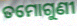
ତମୋଗୁଣୀ